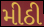
મીઠી